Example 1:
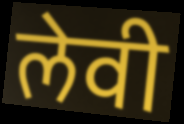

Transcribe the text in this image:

लेवी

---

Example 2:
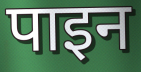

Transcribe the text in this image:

पाइन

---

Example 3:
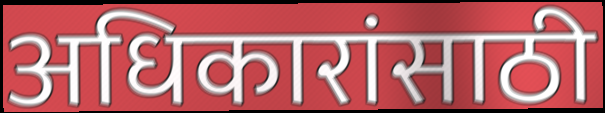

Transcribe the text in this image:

अधिकारांसाठी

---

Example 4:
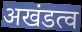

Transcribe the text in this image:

अखंडत्व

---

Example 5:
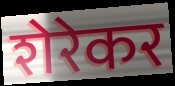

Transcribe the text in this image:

शेरेकर